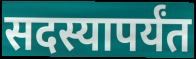
सदस्यापर्यंत